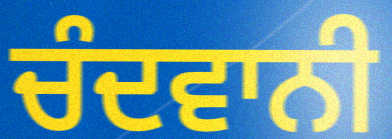
ਚੰਦਵਾਨੀ